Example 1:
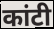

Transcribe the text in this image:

कांटी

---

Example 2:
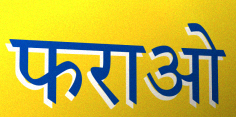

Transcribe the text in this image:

फराओ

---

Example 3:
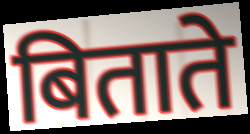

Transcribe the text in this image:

बिताते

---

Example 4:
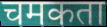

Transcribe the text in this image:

चमकता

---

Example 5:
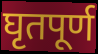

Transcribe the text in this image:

घृतपूर्ण